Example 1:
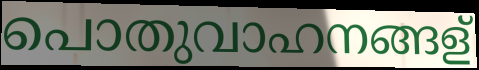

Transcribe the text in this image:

പൊതുവാഹനങ്ങള്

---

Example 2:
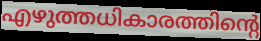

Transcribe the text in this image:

എഴുത്തധികാരത്തിന്റെ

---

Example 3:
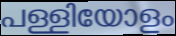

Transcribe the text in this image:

പള്ളിയോളം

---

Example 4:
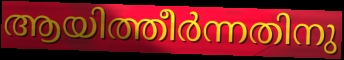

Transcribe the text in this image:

ആയിത്തീർന്നതിനു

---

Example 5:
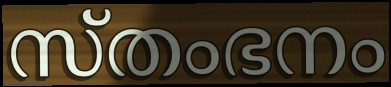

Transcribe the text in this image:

സ്തംഭനം